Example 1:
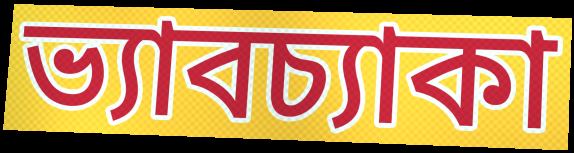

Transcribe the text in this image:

ভ্যাবচ্যাকা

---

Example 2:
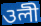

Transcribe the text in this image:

ওলী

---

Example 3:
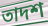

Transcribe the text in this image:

তাদশ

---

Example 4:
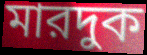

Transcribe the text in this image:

মারদুক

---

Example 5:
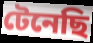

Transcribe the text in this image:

টেনেছি